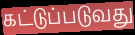
கட்டுப்படுவது